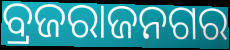
ବ୍ରଜରାଜନଗର